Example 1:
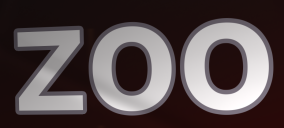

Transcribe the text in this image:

zoo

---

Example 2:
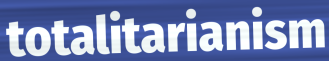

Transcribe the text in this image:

totalitarianism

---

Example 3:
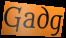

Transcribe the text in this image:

Gadg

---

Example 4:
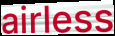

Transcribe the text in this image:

airless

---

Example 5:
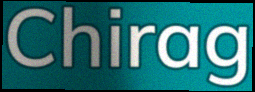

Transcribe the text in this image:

Chirag